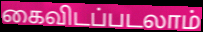
கைவிடப்படலாம்